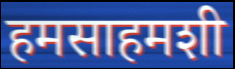
हमसाहमशी